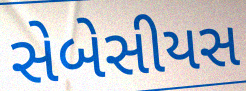
સેબેસીયસ